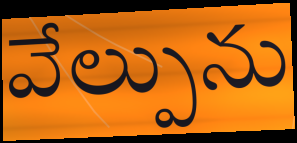
వేల్పును